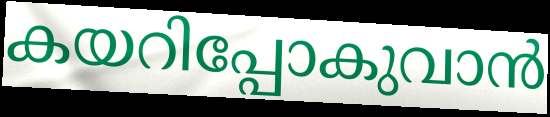
കയറിപ്പോകുവാൻ